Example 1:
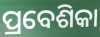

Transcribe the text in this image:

ପ୍ରବେଶିକା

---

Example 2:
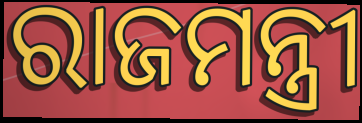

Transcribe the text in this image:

ରାଜମନ୍ତ୍ରୀ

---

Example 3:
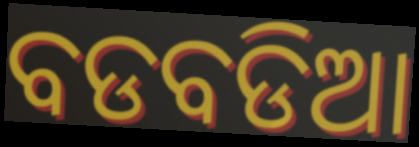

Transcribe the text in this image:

ବଡବଡିଆ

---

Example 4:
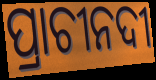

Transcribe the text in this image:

ପ୍ରାଚୀନଦୀ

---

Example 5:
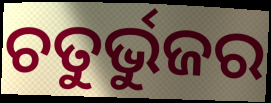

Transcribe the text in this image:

ଚତୁର୍ଭୁଜର